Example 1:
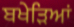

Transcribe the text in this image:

ਬਖੇੜਿਆਂ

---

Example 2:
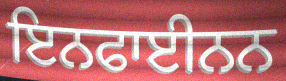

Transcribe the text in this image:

ਇਨਫਾਈਨਨ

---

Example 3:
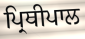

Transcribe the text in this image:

ਪ੍ਰਿਥੀਪਾਲ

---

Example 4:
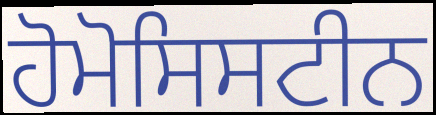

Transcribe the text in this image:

ਹੋਮੋਸਿਸਟੀਨ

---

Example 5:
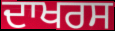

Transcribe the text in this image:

ਦਾਖਰਸ